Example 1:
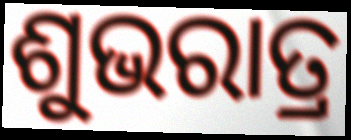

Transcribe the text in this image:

ଶୁଭରାତ୍ର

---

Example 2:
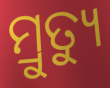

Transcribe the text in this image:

ମ୍ରୁତ୍ୟୁ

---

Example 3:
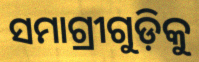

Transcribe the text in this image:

ସମାଗ୍ରୀଗୁଡ଼ିକୁ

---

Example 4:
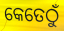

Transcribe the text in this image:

କେତେଠୁଁ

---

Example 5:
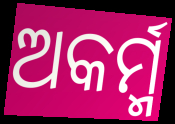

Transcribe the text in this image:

ଅକର୍ମ୍ମ